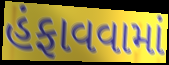
હંફાવવામાં